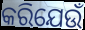
କରିଯେଉଁ